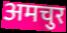
अमचुर